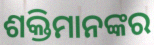
ଶକ୍ତିମାନଙ୍କର